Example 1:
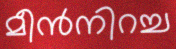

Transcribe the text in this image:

മീൻനിറച്ച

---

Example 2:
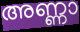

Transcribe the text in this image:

അണ്ണാ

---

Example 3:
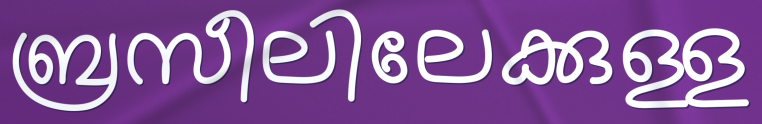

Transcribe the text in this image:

ബ്രസീലിലേക്കുള്ള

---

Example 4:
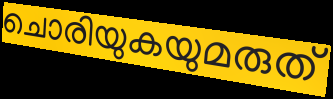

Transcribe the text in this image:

ചൊരിയുകയുമരുത്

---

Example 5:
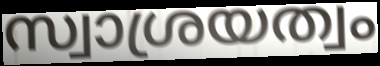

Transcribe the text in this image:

സ്വാശ്രയത്വം